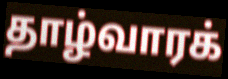
தாழ்வாரக்